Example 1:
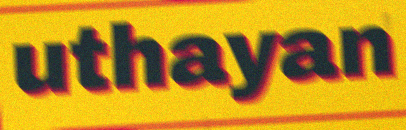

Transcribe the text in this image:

uthayan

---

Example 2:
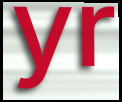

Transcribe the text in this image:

yr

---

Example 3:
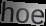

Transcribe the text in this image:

hoe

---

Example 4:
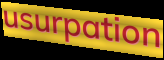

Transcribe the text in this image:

usurpation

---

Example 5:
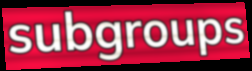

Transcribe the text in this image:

subgroups